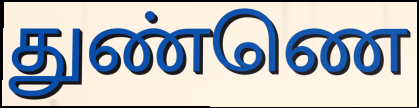
துண்ணெ